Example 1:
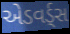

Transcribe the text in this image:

એડવર્ડ્સ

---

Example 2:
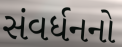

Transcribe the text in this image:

સંવર્ધનનો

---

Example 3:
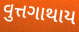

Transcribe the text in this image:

વુત્તગાથાય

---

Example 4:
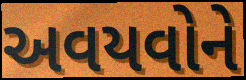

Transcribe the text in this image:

અવયવોને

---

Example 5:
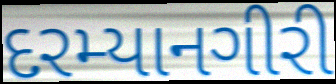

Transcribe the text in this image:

દરમ્યાનગીરી